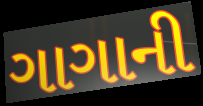
ગાગાની